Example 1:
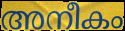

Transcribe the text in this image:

അനീകം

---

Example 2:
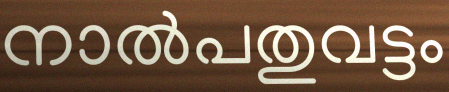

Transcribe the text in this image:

നാൽപതുവട്ടം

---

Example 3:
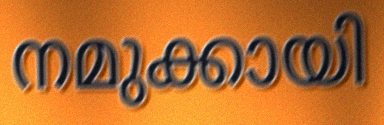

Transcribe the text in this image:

നമുക്കായി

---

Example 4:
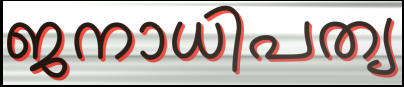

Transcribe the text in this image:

ജനാധിപത്യ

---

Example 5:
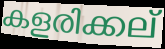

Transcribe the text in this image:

കളരിക്കല്